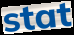
stat